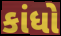
કાંધો